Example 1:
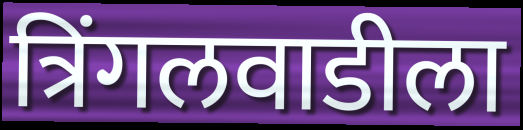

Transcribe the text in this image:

त्रिंगलवाडीला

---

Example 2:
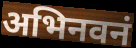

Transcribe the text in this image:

अभिनवनं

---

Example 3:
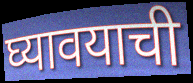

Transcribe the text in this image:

घ्यावयाची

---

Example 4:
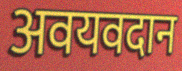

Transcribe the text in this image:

अवयवदान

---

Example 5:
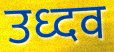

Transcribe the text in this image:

उध्दव